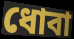
ধোবা